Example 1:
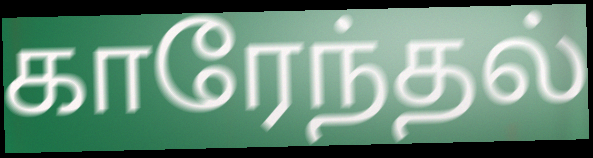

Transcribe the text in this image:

காரேந்தல்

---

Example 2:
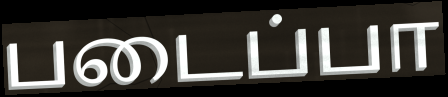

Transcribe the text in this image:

படைப்பா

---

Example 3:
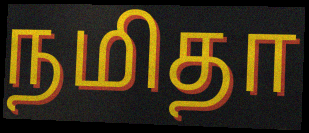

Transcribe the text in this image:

நமிதா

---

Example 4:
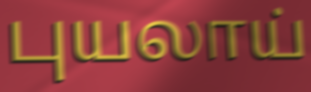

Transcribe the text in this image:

புயலாய்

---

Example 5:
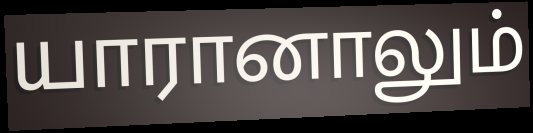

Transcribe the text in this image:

யாரானாலும்